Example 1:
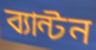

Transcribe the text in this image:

ব্যান্টন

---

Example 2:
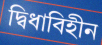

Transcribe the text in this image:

দ্বিধাবিহীন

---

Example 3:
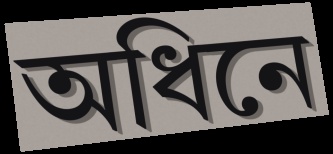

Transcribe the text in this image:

অধিনে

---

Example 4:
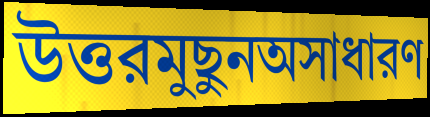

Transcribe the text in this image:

উত্তরমুছুনঅসাধারণ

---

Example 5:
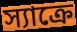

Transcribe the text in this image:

স্যাক্রে